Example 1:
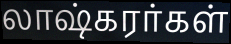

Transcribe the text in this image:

லாஷ்கரர்கள்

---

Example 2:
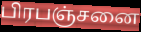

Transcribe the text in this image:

பிரபஞ்சனை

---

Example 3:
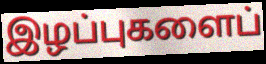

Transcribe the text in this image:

இழப்புகளைப்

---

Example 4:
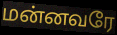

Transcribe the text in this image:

மன்னவரே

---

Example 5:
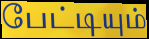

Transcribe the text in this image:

பேட்டியும்